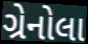
ગ્રેનોલા